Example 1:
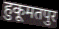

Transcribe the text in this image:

हुकूमतपुर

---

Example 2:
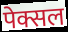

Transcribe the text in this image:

पेक्सल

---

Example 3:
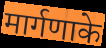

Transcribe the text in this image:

मार्गणाके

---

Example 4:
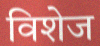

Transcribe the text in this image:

विशेज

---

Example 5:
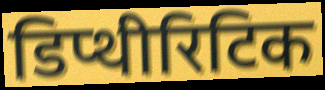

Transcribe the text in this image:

डिप्थीरिटिक